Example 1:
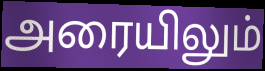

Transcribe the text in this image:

அரையிலும்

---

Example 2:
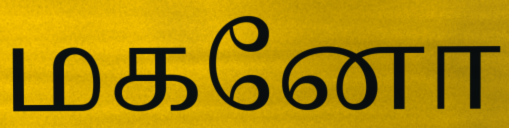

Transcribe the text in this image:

மகனோ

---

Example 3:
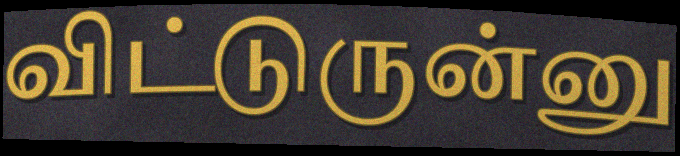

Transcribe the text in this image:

விட்டுருன்னு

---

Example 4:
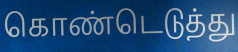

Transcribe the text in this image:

கொண்டெடுத்து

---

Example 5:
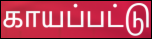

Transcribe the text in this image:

காயப்பட்டு